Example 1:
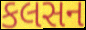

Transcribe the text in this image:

કલસન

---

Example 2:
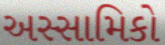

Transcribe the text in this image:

અસ્સામિકો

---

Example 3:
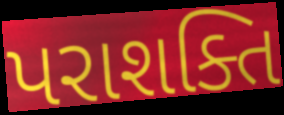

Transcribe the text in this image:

પરાશક્તિ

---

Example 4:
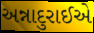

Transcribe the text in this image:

અન્નાદુરાઈએ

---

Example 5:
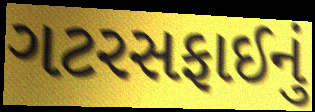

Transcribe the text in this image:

ગટરસફાઈનું